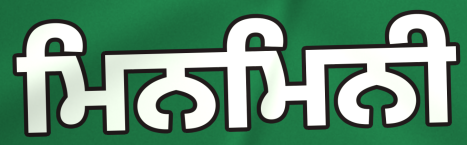
ਮਿਨਮਿਨੀ